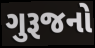
ગુરૂજનો